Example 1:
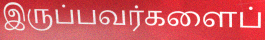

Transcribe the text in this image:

இருப்பவர்களைப்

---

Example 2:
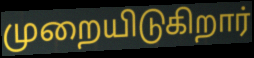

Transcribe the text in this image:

முறையிடுகிறார்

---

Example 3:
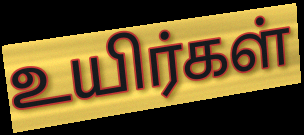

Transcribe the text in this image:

உயிர்கள்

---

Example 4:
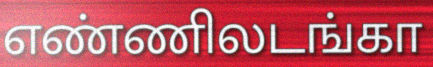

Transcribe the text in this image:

எண்ணிலடங்கா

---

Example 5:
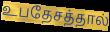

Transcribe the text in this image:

உபதேசத்தால்